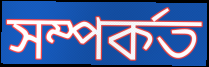
সম্পৰ্কত